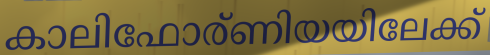
കാലിഫോര്ണിയയിലേക്ക്